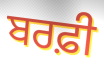
ਬਰਫ਼ੀ